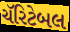
ચૅરિટેબલ